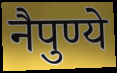
नैपुण्ये